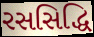
રસસિદ્ધિ